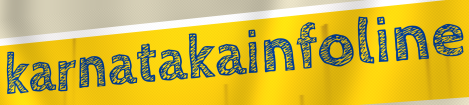
karnatakainfoline